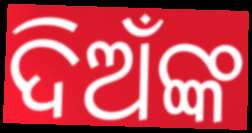
ଦିଅଁଙ୍କ